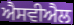
ਐਸਵੀਐਲ